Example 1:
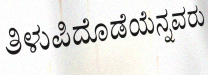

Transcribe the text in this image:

ತಿಳುಪಿದೊಡೆಯೆನ್ನವರು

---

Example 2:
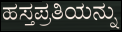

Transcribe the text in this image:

ಹಸ್ತಪ್ರತಿಯನ್ನು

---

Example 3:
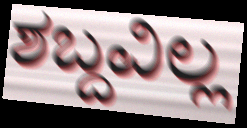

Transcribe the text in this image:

ಶಬ್ದವಿಲ್ಲ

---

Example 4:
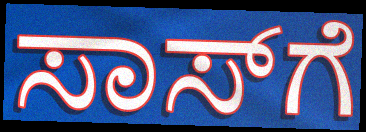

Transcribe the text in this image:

ಸಾಸ್‌ಗೆ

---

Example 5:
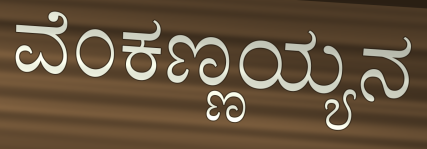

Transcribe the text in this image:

ವೆಂಕಣ್ಣಯ್ಯನ